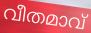
വീതമാവ്